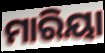
ମାରିୟା